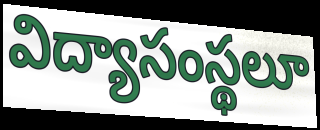
విద్యాసంస్థలూ